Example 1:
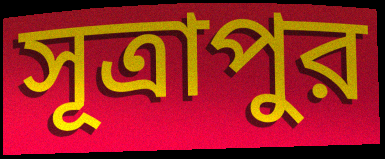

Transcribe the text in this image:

সূত্রাপুর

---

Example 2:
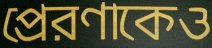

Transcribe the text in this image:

প্রেরণাকেও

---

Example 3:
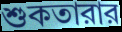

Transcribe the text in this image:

শুকতারার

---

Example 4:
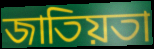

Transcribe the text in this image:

জাতিয়তা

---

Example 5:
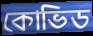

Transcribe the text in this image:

কোভিড